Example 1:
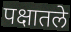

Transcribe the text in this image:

पक्षातले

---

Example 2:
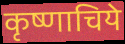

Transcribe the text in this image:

कृष्णाचिये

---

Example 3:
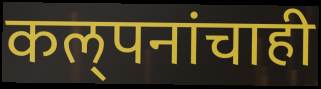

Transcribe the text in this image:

कल्पनांचाही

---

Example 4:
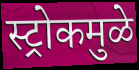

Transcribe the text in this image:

स्ट्रोकमुळे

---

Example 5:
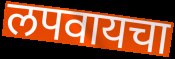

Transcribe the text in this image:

लपवायचा